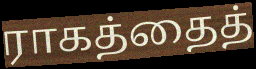
ராகத்தைத்